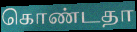
கொண்டதா